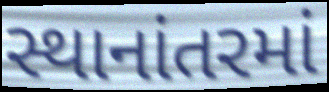
સ્થાનાંતરમાં